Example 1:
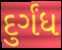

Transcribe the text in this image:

દુર્ગંધ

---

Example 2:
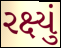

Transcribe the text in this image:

રક્ષ્યું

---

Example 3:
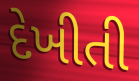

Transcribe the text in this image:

દેખીતી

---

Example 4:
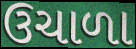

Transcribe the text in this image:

ઉચાળા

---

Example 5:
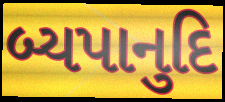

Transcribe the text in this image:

બ્યપાનુદિ